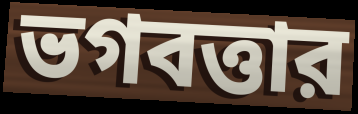
ভগবত্তার